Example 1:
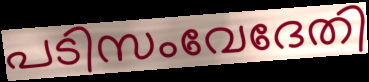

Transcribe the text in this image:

പടിസംവേദേതി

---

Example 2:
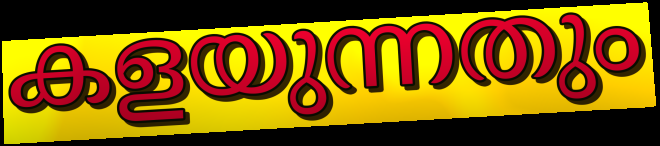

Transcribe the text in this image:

കളയുന്നതും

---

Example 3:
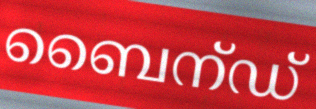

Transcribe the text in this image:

ബൈന്ഡ്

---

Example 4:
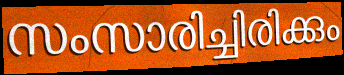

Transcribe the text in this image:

സംസാരിച്ചിരിക്കും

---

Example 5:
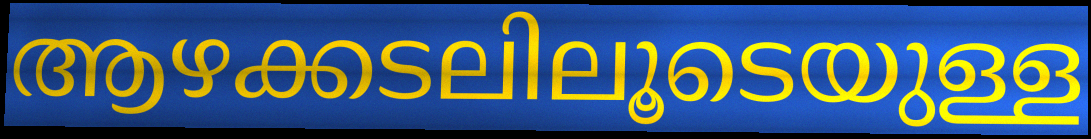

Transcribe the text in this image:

ആഴക്കടലിലൂടെയുള്ള